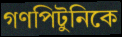
গণপিটুনিকে